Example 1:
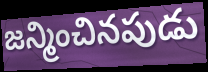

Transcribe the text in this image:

జన్మించినపుడు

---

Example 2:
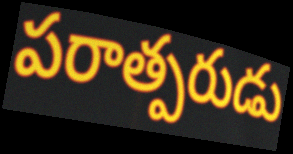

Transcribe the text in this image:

పరాత్పరుడు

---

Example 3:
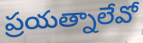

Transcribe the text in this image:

ప్రయత్నాలేవో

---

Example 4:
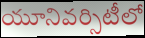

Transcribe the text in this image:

యూనివర్సిటీలో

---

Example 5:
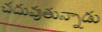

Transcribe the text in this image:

చదువుతున్నాడు